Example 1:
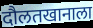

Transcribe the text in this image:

दौलतखानाला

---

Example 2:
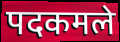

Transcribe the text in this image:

पदकमले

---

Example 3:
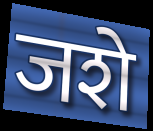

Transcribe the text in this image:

जशे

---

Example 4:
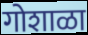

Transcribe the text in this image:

गोशाळा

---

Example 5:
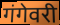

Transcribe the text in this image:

गंगेवरी